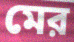
মের